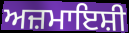
ਅਜ਼ਮਾਇਸ਼ੀ